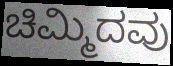
ಚಿಮ್ಮಿದವು